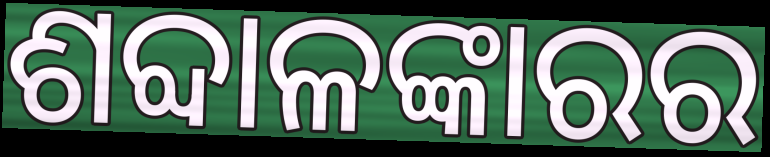
ଶବ୍ଦାଳଙ୍କାରର